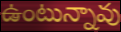
ఉంటున్నావు